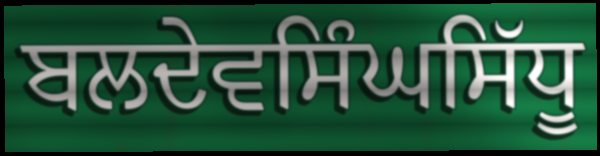
ਬਲਦੇਵਸਿੰਘਸਿੱਧੂ